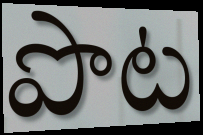
పొట